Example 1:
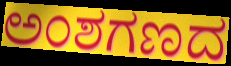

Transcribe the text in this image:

ಅಂಶಗಣದ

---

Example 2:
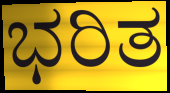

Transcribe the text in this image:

ಭರಿತ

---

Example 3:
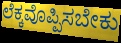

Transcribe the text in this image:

ಲೆಕ್ಕವೊಪ್ಪಿಸಬೇಕು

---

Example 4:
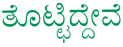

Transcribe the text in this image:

ತೊಟ್ಟಿದ್ದೇವೆ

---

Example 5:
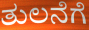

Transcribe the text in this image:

ತುಲನೆಗೆ